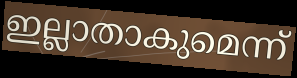
ഇല്ലാതാകുമെന്ന്